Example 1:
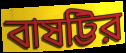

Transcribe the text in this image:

বাষট্টির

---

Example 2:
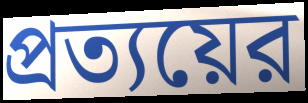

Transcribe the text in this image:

প্রত্যয়ের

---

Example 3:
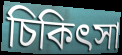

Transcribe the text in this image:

চিকিৎসা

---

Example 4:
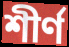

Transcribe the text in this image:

শীর্ণ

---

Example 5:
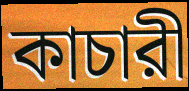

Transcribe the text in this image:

কাচারী